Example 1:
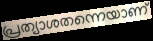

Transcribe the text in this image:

പ്രത്യാശതന്നെയാണ്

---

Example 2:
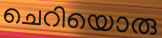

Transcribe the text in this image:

ചെറിയൊരു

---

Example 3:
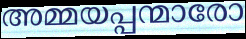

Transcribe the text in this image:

അമ്മയപ്പന്മാരോ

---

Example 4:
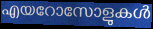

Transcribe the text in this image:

എയറോസോളുകൾ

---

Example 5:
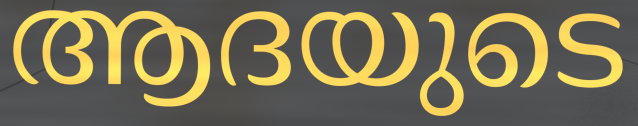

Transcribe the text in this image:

ആദയുടെ